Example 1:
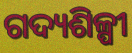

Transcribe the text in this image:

ଗଦ୍ୟଶିଳ୍ପୀ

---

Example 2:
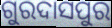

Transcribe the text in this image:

ଗୁରଦାସପୁର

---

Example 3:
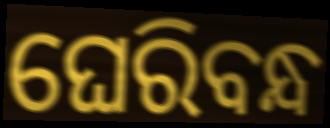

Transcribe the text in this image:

ଘେରିବନ୍ଧ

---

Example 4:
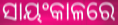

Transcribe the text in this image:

ସାୟଂକାଳରେ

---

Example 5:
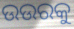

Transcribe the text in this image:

ଉଉରକୁ